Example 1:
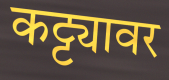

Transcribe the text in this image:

कट्ट्यावर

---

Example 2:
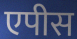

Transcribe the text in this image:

एपीस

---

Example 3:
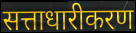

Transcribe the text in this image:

सत्ताधारीकरण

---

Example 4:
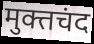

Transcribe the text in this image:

मुक्तचंद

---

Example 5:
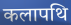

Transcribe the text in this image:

कलापथि